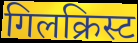
गिलक्रिस्ट